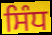
ਸਿੰਧ